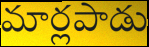
మార్లపాడు